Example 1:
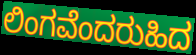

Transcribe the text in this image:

ಲಿಂಗವೆಂದರುಹಿದ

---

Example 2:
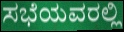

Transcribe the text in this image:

ಸಭೆಯವರಲ್ಲಿ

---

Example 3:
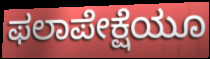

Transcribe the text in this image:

ಫಲಾಪೇಕ್ಷೆಯೂ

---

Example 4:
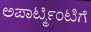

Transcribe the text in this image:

ಅಪಾರ್ಟ್ಮೆಂಟಿಗೆ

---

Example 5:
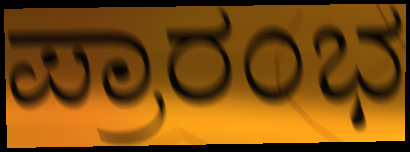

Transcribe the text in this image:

ಪ್ರಾರಂಭ